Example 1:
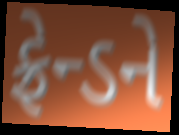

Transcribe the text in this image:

ફ્રેન્ડને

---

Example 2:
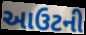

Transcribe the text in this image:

આઉટની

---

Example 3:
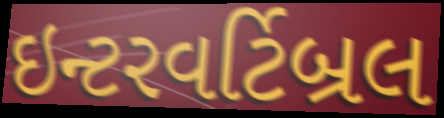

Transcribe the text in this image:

ઇન્ટરવર્ટિબ્રલ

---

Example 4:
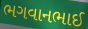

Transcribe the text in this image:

ભગવાનભાઈ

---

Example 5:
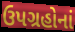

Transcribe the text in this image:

ઉપગ્રહોનાં